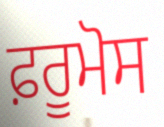
ਫ਼ਰੂਮੋਸ